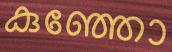
കുഞ്ഞോ